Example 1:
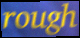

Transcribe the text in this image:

rough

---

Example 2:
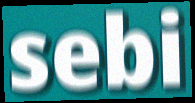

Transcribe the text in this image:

sebi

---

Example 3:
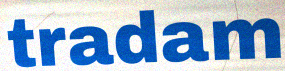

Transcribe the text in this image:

tradam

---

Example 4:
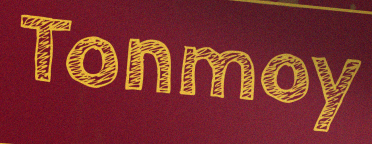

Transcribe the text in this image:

Tonmoy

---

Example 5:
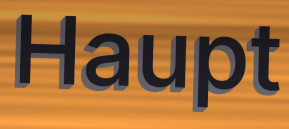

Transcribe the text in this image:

Haupt